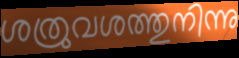
ശത്രുവശത്തുനിന്നു